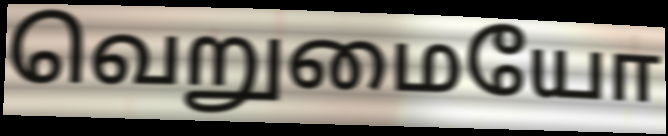
வெறுமையோ